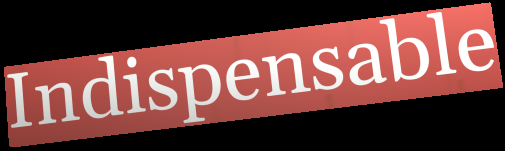
Indispensable